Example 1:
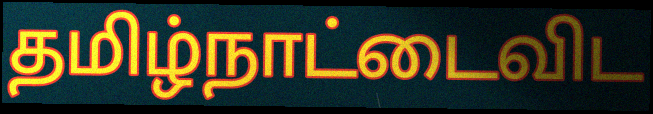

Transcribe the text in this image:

தமிழ்நாட்டைவிட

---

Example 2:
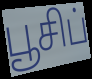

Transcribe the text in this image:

பூசிப்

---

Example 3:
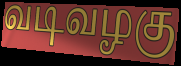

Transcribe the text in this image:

வடிவழகு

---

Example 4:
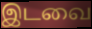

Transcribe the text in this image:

இடவை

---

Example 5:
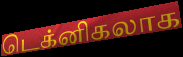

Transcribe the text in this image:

டெக்னிகலாக